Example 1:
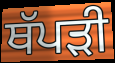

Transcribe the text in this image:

ਥੱਪੜੀ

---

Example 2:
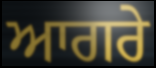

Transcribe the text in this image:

ਆਗਰੇ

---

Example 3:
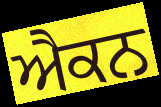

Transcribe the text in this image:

ਐਕਨ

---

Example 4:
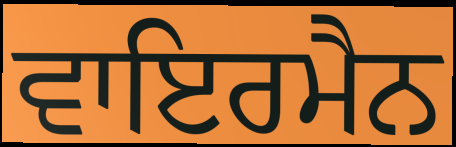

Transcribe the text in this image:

ਵਾਇਰਮੈਨ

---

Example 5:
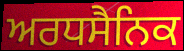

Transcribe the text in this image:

ਅਰਧਸੈਨਿਕ